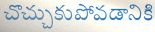
చొచ్చుకుపోవడానికి